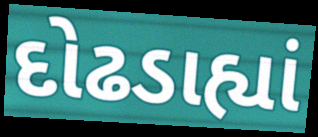
દોઢડાહ્યાં